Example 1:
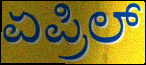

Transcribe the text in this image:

ಏಪ್ರಿಲ್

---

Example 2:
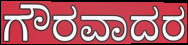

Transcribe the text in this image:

ಗೌರವಾದರ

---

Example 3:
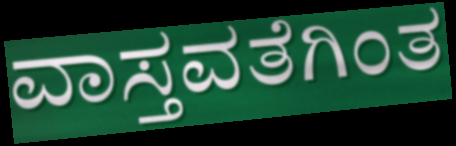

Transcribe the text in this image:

ವಾಸ್ತವತೆಗಿಂತ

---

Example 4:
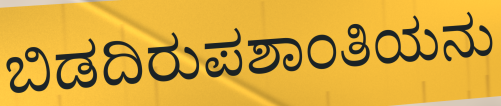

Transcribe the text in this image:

ಬಿಡದಿರುಪಶಾಂತಿಯನು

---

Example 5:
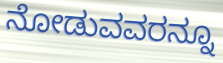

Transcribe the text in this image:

ನೋಡುವವರನ್ನೂ